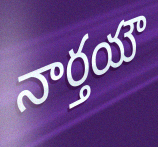
నార్తయౌ